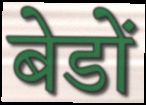
बेडों